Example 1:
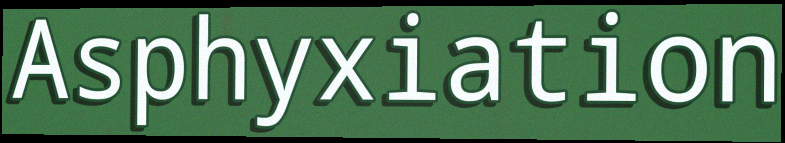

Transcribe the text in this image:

Asphyxiation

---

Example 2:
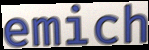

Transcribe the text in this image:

emich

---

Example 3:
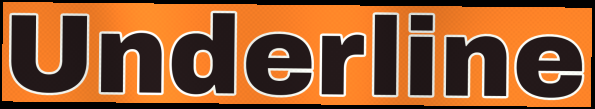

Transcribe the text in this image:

Underline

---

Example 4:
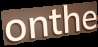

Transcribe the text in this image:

onthe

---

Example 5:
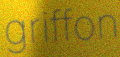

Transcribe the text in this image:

griffon